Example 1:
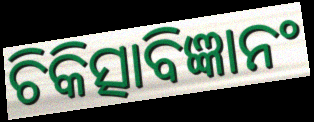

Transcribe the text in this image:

ଚିକିତ୍ସାବିଜ୍ଞାନଂ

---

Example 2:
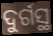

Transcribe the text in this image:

ଦୁର୍ଗସ୍ଥ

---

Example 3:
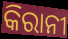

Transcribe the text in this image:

କିରାନୀ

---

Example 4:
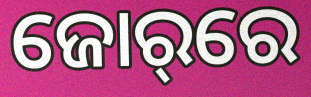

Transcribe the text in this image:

ଜୋର୍‌ରେ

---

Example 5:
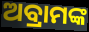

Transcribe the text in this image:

ଅବ୍ରାମଙ୍କ